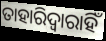
ତାହାରିଦ୍ୱାରାହିଁ